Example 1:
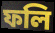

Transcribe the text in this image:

ফলি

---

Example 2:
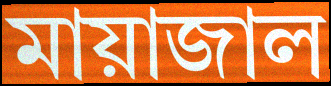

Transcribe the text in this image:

মায়াজাল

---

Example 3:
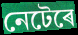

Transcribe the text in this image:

নেটেৰে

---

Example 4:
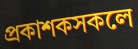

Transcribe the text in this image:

প্ৰকাশকসকলে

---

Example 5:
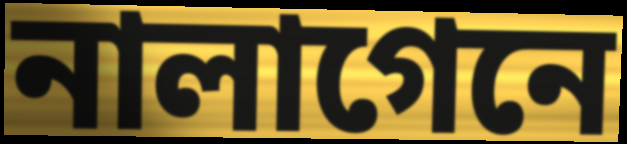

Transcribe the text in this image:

নালাগেনে